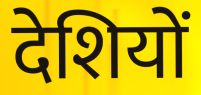
देशियों